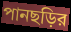
পানছড়ির